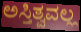
ಅಸ್ತಿತ್ವವಲ್ಲ